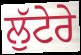
ਲੁੱਟੇਰੇ